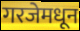
गरजेमधून